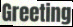
Greeting